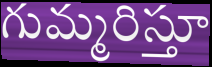
గుమ్మరిస్తూ